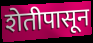
शेतीपासून